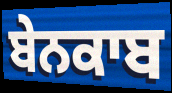
ਬੇਨਕਾਬ